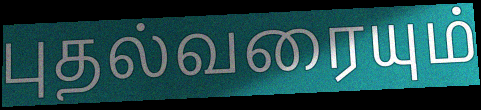
புதல்வரையும்